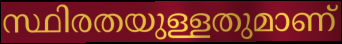
സ്ഥിരതയുള്ളതുമാണ്